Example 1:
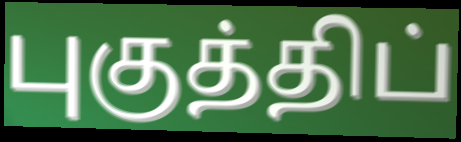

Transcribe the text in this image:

புகுத்திப்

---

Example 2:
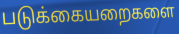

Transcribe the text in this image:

படுக்கையறைகளை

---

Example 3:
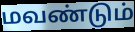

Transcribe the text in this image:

மவண்டும்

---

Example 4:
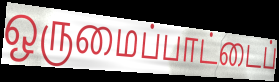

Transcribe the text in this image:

ஒருமைப்பாட்டைப்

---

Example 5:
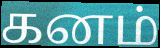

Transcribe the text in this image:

கனம்